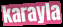
karayla